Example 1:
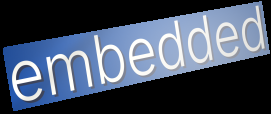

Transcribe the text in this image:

embedded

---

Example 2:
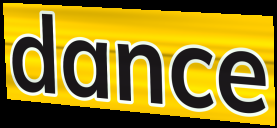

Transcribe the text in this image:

dance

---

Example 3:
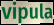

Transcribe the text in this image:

vipula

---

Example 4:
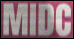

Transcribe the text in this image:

MIDC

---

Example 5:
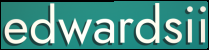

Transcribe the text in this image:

edwardsii